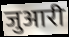
जुआरी